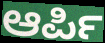
ಆರ್ಪಿ